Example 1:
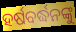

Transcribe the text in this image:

ହର୍ଷବର୍ଦ୍ଧନଙ୍କୁ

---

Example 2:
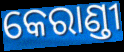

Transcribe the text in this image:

କେରାଣ୍ଡୀ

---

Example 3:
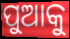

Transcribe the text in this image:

ପୁଆକୁ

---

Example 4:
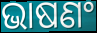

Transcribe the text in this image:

ଭାଷଣଂ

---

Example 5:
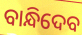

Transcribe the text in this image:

ବାନ୍ଧିଦେବ